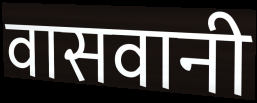
वासवानी